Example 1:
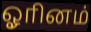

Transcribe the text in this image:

ஓரினம்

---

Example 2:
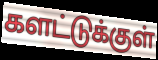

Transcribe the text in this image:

களட்டுக்குள்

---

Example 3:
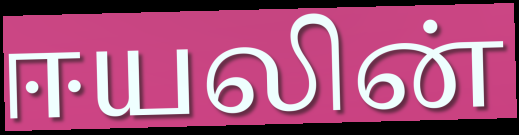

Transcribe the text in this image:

ஈயலின்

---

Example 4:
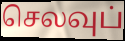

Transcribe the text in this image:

செலவுப்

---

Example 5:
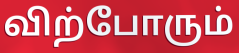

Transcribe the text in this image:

விற்போரும்